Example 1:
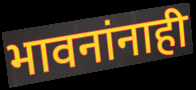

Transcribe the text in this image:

भावनांनाही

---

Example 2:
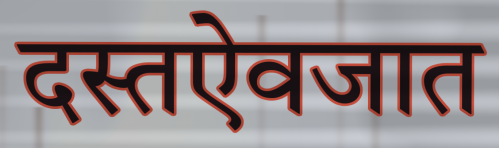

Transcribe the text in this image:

दस्तऐवजात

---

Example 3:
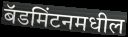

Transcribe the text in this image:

बॅडमिंटनमधील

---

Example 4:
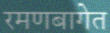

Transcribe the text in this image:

रमणबागेत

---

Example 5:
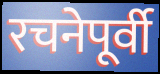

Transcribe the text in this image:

रचनेपूर्वी